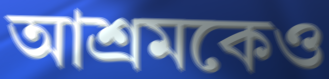
আশ্রমকেও